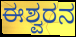
ಈಶ್ವರನ